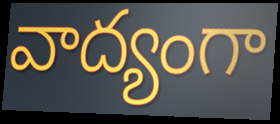
వాద్యంగా